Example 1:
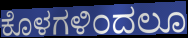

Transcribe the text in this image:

ಕೊಳಗಳಿಂದಲೂ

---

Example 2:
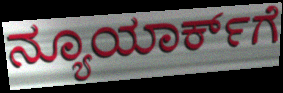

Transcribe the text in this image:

ನ್ಯೂಯಾರ್ಕ್‌ಗೆ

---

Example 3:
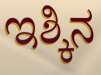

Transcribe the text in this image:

ಇಶ್ಕಿನ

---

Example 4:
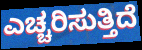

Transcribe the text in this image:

ಎಚ್ಚರಿಸುತ್ತಿದೆ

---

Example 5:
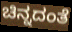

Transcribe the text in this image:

ಚಿನ್ನದಂತೆ